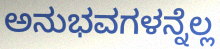
ಅನುಭವಗಳನ್ನೆಲ್ಲ